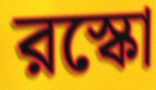
রস্কো